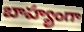
బాహ్యంగా